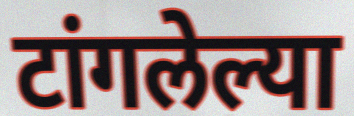
टांगलेल्या